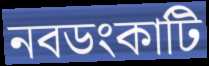
নবডংকাটি